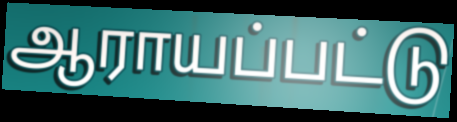
ஆராயப்பட்டு